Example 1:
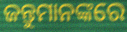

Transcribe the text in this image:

ଜନ୍ତୁମାନଙ୍କରେ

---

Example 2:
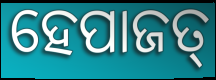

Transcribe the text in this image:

ହେପାଜତ୍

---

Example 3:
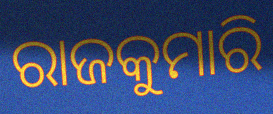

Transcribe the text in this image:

ରାଜକୁମାରି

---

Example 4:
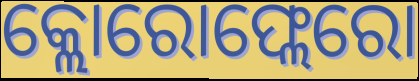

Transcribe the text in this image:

କ୍ଲୋରୋଫ୍ଲେରୋ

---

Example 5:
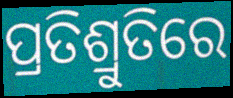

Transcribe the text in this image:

ପ୍ରତିଶ୍ରୁତିରେ